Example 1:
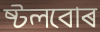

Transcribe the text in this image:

ষ্টলবোৰ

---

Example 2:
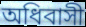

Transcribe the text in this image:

অধিবাসী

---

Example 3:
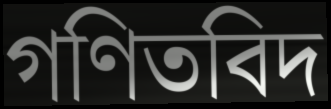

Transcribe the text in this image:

গণিতবিদ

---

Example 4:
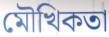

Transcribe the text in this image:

মৌখিকতা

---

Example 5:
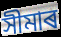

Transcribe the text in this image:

সীমাৰ